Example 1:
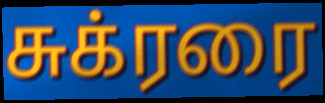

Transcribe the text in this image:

சுக்ரரை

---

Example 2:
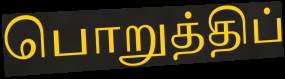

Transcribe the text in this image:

பொறுத்திப்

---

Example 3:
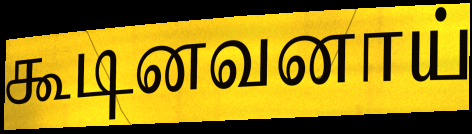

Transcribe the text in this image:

கூடினவனாய்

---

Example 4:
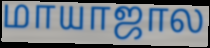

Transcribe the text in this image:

மாயாஜால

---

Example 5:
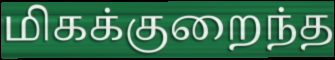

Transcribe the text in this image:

மிகக்குறைந்த